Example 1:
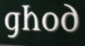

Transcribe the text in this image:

ghod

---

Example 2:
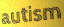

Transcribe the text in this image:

autism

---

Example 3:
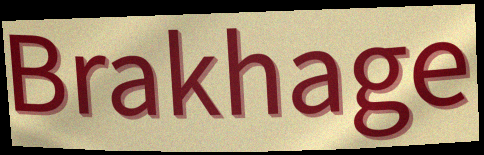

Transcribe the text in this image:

Brakhage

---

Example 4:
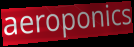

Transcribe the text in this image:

aeroponics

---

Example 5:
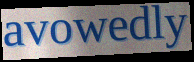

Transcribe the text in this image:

avowedly